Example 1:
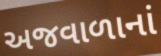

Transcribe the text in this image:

અજવાળાનાં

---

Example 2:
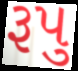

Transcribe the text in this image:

રૂપુ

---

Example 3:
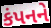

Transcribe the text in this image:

કંપનને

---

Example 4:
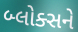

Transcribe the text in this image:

બ્લોક્સને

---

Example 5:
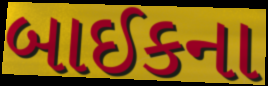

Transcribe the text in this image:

બાઈકના